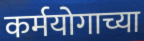
कर्मयोगाच्या